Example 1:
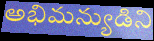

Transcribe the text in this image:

అభిమన్యుడిని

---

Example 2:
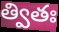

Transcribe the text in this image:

త్వితః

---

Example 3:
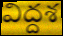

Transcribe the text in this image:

విద్దశ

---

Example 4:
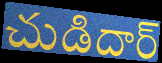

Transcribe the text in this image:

చుడిదార్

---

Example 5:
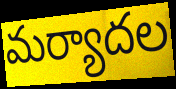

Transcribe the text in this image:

మర్యాదల